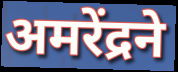
अमरेंद्रने